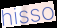
hisso